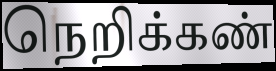
நெறிக்கண்